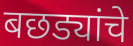
बछड्यांचे